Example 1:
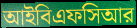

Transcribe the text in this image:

আইবিএফসিআর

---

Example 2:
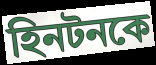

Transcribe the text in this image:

হিনটনকে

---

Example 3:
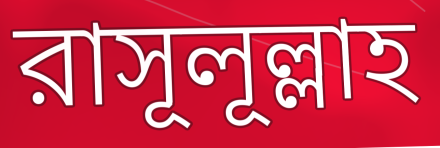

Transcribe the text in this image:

রাসূলূল্লাহ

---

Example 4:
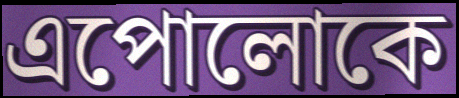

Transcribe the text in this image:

এপোলোকে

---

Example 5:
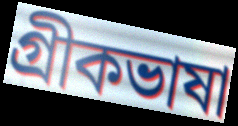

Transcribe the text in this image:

গ্রীকভাষা